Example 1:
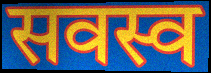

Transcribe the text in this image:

सवस्व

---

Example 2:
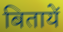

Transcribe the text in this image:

बितायें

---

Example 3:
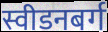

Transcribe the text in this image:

स्वीडनबर्ग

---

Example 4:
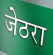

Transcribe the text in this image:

जेठरा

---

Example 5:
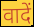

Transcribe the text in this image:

वादें